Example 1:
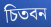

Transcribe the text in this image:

চিতবন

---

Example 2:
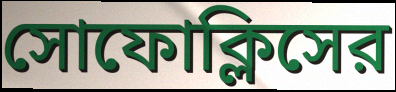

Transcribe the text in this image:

সোফোক্লিসের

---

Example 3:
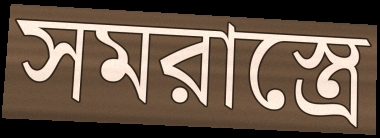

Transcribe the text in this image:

সমরাস্ত্রে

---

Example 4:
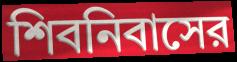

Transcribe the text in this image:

শিবনিবাসের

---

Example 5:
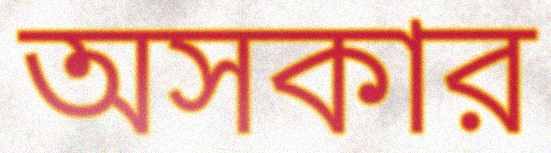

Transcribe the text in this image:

অসকার